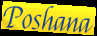
Poshana